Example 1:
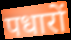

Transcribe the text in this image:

पधारों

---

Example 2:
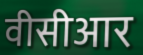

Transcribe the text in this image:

वीसीआर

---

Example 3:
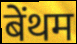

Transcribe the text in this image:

बेंथम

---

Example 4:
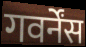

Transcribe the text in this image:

गवर्नेंस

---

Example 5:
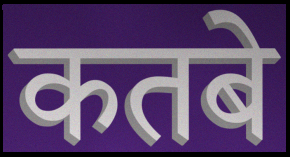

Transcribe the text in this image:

कतबे